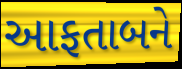
આફતાબને